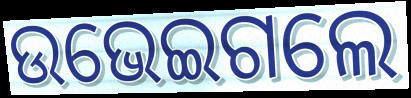
ଉଭେଇଗଲେ